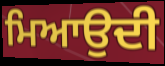
ਮਿਆਉਦੀ